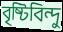
বৃষ্টিবিন্দু